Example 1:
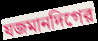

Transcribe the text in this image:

যজমানদিগের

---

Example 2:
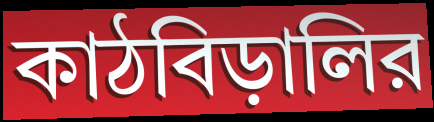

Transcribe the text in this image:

কাঠবিড়ালির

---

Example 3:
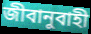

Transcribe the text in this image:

জীবানুবাহী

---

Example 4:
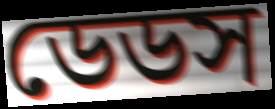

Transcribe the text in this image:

ডেডস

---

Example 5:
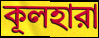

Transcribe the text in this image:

কূলহারা